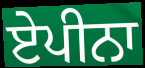
ਏਪੀਨਾ